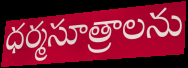
ధర్మసూత్రాలను